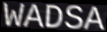
WADSA